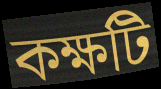
কক্ষটি